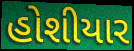
હોશીયાર